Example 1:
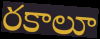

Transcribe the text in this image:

రకాలూ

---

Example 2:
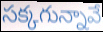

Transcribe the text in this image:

సక్కగున్నావే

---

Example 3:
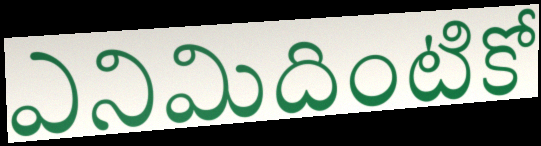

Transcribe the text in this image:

ఎనిమిదింటికో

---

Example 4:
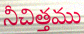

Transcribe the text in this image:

నీచిత్తము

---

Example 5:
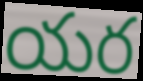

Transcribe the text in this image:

యర